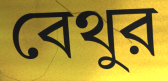
বেথুর